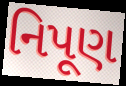
નિપૂણ